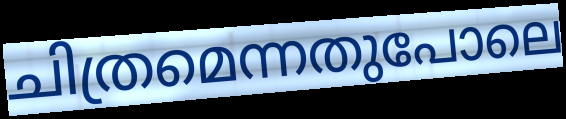
ചിത്രമെന്നതുപോലെ